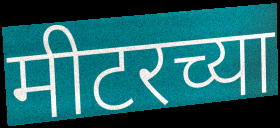
मीटरच्या